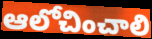
ఆలోచించాలి